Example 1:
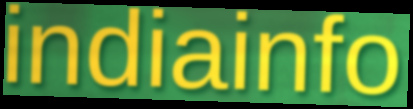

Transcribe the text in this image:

indiainfo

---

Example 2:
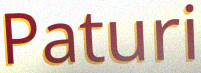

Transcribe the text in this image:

Paturi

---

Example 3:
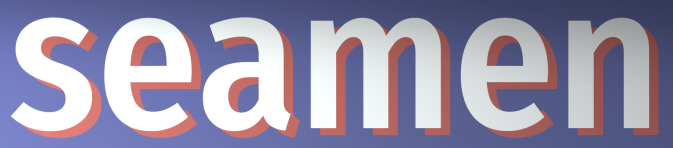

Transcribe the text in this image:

seamen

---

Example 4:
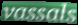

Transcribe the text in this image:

vassals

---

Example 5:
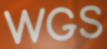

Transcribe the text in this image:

WGS